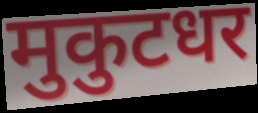
मुकुटधर